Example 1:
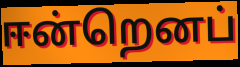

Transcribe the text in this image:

ஈன்றெனப்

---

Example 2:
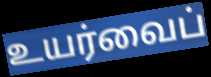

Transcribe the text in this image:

உயர்வைப்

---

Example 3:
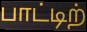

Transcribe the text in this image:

பாட்டிற்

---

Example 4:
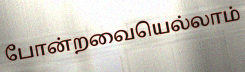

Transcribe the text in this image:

போன்றவையெல்லாம்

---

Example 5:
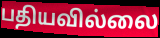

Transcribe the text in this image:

பதியவில்லை